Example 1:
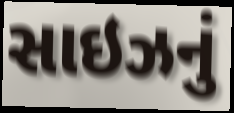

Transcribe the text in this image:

સાઇઝનું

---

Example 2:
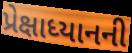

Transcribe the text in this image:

પ્રેક્ષાધ્યાનની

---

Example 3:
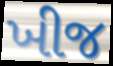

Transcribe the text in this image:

ખીજ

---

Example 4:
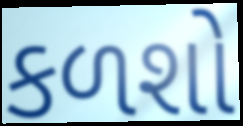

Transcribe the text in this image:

કળશો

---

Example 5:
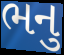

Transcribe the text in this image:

ભનુ